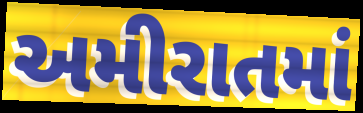
અમીરાતમાં